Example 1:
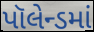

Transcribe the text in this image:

પૉલેન્ડમાં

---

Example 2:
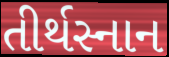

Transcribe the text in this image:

તીર્થસ્નાન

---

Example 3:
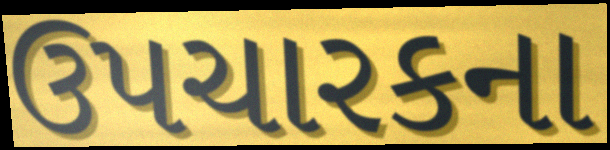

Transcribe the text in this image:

ઉપચારકના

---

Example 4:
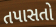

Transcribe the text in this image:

તપાસતો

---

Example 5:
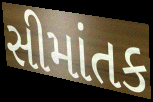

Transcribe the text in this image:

સીમાંતક